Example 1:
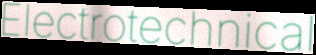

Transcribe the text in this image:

Electrotechnical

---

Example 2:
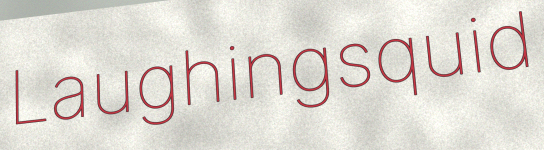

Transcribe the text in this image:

Laughingsquid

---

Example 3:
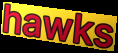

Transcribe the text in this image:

hawks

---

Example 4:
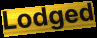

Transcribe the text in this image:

Lodged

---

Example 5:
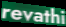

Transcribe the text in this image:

revathi